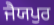
ਜੈਯਪੁਰ